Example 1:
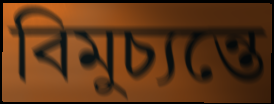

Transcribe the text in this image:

বিমুচ্যন্তে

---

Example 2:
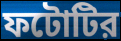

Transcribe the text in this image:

ফটোটির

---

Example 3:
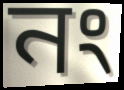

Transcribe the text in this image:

নং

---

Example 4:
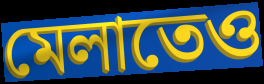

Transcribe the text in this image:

মেলাতেও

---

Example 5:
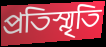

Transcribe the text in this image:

প্রতিস্মৃতি